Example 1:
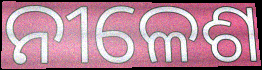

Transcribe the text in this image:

ନୀଳେଶ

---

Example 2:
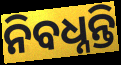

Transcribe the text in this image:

ନିବଧ୍ନନ୍ତି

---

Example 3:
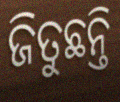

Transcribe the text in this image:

ଜିତୁଛନ୍ତି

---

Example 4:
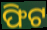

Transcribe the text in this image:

ଫିଟ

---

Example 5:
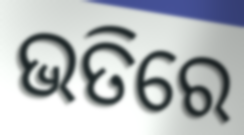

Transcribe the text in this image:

ଭତିରେ